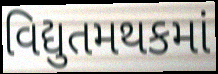
વિદ્યુતમથકમાં